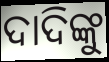
ଦାଦିଙ୍କୁ